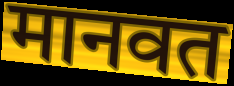
मानवत